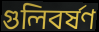
গুলিবৰ্ষণ